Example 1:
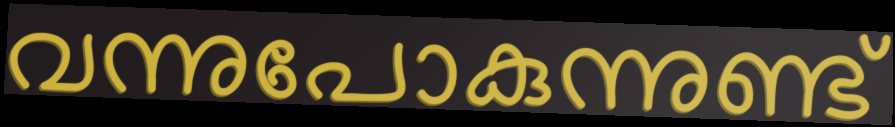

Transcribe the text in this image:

വന്നുപോകുന്നുണ്ട്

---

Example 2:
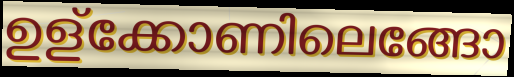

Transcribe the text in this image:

ഉള്ക്കോണിലെങ്ങോ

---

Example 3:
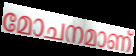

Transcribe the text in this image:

മോചനമാണ്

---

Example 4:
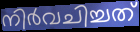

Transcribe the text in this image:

നിർവചിച്ചത്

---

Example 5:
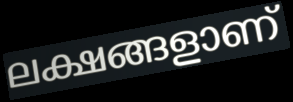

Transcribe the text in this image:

ലക്ഷങ്ങളാണ്